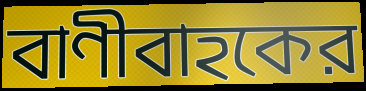
বাণীবাহকের